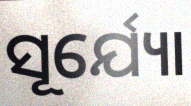
ସୂର୍ଯ୍ୟୋ